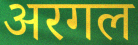
अरगल